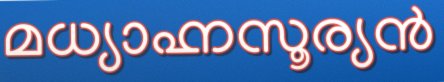
മധ്യാഹ്നസൂര്യൻ